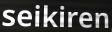
seikiren